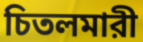
চিতলমারী